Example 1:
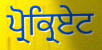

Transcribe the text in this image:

ਪ੍ਰੋਕ੍ਰਿਏਟ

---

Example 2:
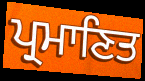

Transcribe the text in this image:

ਪ੍ਰਮਾਣਿਤ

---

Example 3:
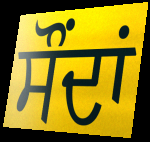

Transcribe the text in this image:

ਸੌਂਦਾਂ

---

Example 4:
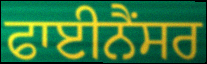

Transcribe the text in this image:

ਫਾਈਨੈਂਸਰ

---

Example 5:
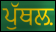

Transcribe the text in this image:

ਪੁੱਥਲ਼